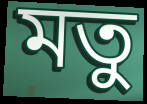
মতু